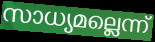
സാധ്യമല്ലെന്ന്